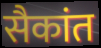
सैकांत